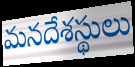
మనదేశస్థులు